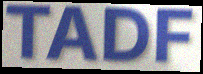
TADF